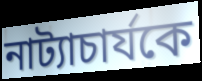
নাট্যাচার্যকে